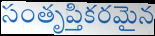
సంతృప్తికరమైన